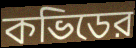
কভিডের